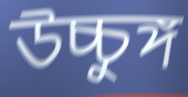
উচ্চুঙ্গ